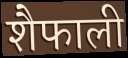
शैफाली